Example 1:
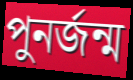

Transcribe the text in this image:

পুনৰ্জন্ম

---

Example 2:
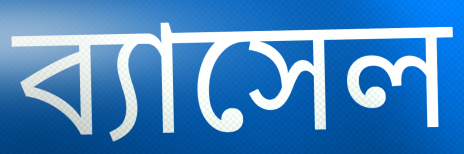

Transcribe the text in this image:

ব্যাসেল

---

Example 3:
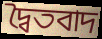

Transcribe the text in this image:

দ্বৈতবাদ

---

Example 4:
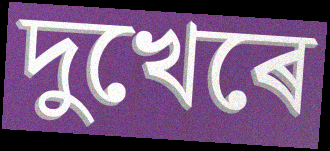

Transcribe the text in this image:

দুখেৰে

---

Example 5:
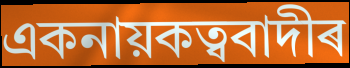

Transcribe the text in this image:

একনায়কত্ববাদীৰ